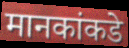
मानकांकडे